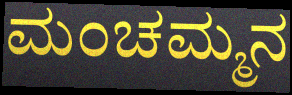
ಮಂಚಮ್ಮನ